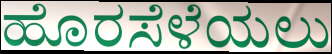
ಹೊರಸೆಳೆಯಲು